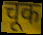
चूक